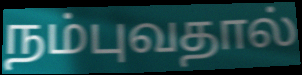
நம்புவதால்